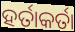
ହର୍ତାକର୍ତା